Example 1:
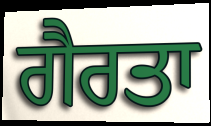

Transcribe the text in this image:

ਗੈਰਤਾ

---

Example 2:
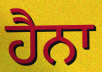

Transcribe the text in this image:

ਹੈਨਾ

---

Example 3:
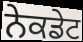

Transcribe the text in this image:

ਨੇਕਡੇਟ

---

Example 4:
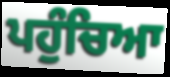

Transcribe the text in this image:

ਪਹੁੰਚਿਆ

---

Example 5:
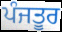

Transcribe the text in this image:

ਪੰਜਤੂਰ